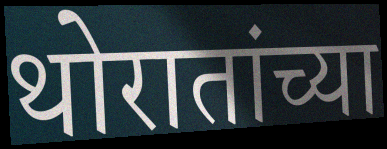
थोरातांच्या